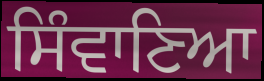
ਸਿੰਵਾਣਿਆ